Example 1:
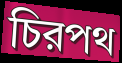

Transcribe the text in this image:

চিরপথ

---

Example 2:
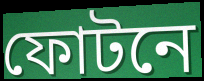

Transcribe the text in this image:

ফোটনে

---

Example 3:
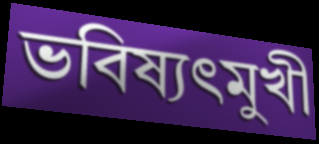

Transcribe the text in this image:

ভবিষ্যৎমুখী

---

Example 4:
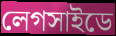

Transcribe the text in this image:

লেগসাইডে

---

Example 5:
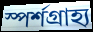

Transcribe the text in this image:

স্পর্শগ্রাহ্য